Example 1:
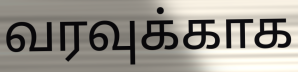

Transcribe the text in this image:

வரவுக்காக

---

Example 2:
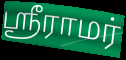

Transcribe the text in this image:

ஶ்ரீராமர்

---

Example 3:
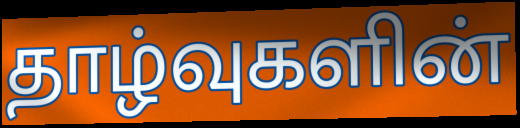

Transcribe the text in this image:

தாழ்வுகளின்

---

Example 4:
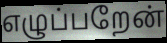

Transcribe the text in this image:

எழுப்பறேன்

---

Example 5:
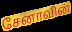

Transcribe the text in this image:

சேனாவின்